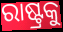
ରାଷ୍ଟ୍ରକୁ